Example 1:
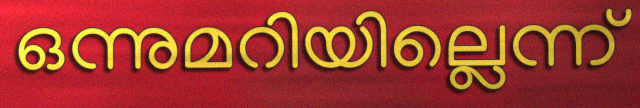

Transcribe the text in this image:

ഒന്നുമറിയില്ലെന്ന്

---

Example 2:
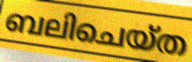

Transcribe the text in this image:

ബലിചെയ്ത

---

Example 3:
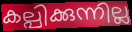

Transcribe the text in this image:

കല്പിക്കുന്നില്ല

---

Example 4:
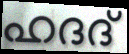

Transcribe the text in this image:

ഹദദ്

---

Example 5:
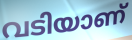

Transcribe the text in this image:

വടിയാണ്